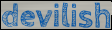
devilish